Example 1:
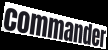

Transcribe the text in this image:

commander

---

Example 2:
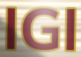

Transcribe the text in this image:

IGI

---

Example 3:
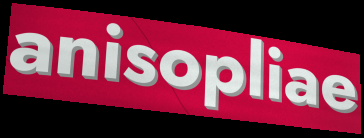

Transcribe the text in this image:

anisopliae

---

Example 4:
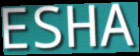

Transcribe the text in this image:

ESHA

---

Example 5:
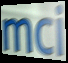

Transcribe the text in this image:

mci